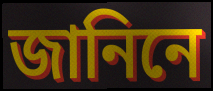
জানিনে